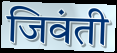
जिवंती